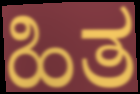
ಹಿತ